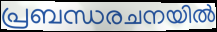
പ്രബന്ധരചനയിൽ